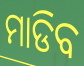
ମାଡିବ